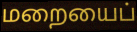
மறையைப்